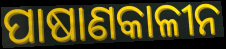
ପାଷାଣକାଳୀନ